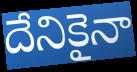
దేనికైనా